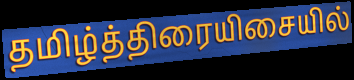
தமிழ்த்திரையிசையில்